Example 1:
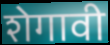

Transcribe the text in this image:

शेगावी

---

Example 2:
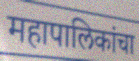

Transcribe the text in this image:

महापालिकांचा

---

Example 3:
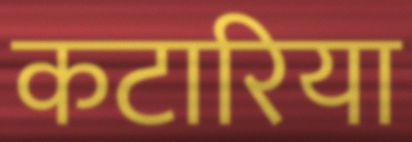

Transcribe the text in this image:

कटारिया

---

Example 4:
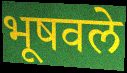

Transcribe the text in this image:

भूषवले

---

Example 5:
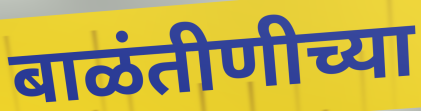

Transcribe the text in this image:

बाळंतीणीच्या